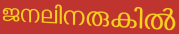
ജനലിനരുകിൽ